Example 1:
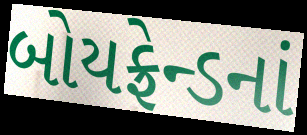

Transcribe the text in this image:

બોયફ્રેન્ડનાં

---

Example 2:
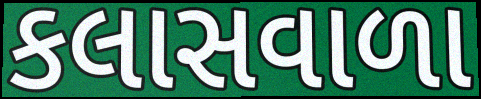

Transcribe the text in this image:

કલાસવાળા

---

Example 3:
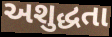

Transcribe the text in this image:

અશુદ્ધતા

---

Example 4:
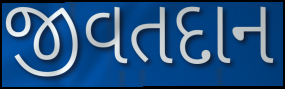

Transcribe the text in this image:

જીવતદાન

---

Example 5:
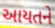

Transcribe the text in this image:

આયતને